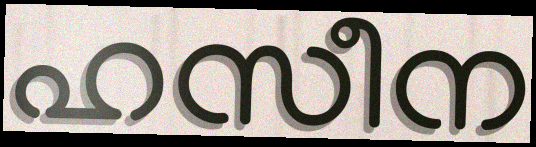
ഹസീന